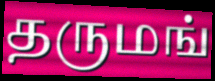
தருமங்